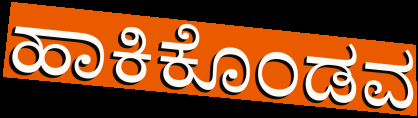
ಹಾಕಿಕೊಂಡವ